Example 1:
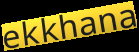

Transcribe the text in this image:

ekkhana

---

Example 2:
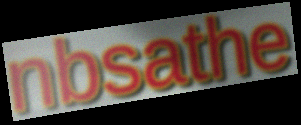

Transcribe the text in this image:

nbsathe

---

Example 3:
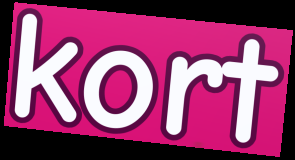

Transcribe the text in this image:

kort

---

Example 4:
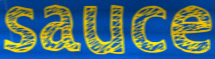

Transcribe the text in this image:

sauce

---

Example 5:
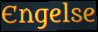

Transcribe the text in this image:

Engelse